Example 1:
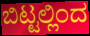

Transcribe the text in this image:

ಬಿಟ್ಟಲ್ಲಿಂದ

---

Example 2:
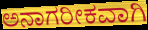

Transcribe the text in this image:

ಅನಾಗರೀಕವಾಗಿ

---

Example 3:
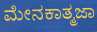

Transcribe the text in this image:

ಮೇನಕಾತ್ಮಜಾ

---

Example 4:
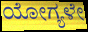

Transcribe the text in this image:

ಯೋಗ್ಯಳೇ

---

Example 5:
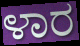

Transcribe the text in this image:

ಳಾರ